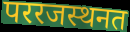
पररजस्थनत